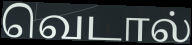
வெடால்